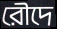
রৌদে